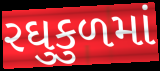
રઘુકુળમાં